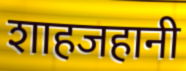
शाहजहानी